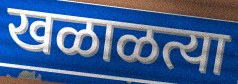
खळाळत्या